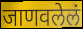
जाणवलेलं